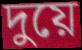
দুয়ে